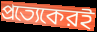
প্রত্যেকেরই